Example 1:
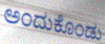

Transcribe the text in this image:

ಅಂದುಕೊಂಡು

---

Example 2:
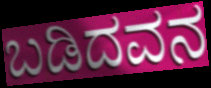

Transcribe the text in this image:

ಬಡಿದವನ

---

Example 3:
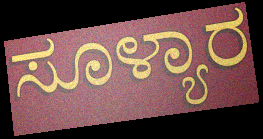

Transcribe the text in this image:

ಸೂಳ್ಯಾರ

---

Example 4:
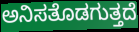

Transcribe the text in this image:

ಅನಿಸತೊಡಗುತ್ತದೆ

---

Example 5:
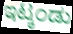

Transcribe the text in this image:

ಇಟ್ಕಂಡು